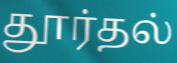
தூர்தல்